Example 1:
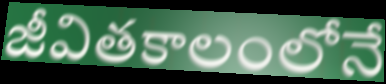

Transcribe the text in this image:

జీవితకాలంలోనే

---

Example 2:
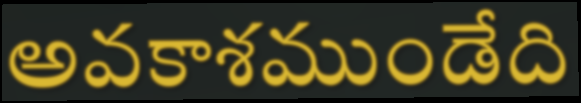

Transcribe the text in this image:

అవకాశముండేది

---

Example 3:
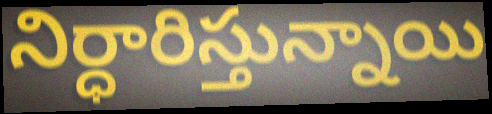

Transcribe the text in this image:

నిర్ధారిస్తున్నాయి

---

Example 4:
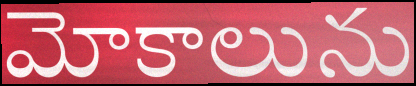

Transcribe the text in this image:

మోకాలును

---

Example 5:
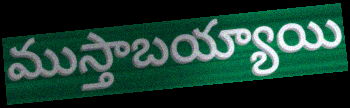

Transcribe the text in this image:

ముస్తాబయ్యాయి